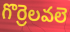
గొర్రెలవలె